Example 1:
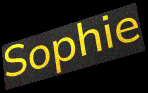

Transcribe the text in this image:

Sophie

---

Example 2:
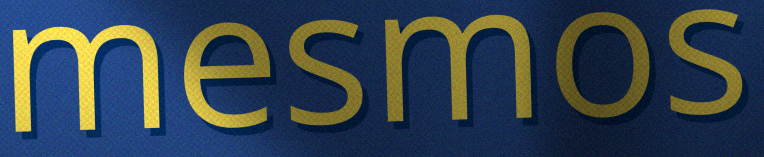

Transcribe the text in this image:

mesmos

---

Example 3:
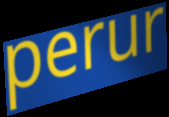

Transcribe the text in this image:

perur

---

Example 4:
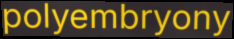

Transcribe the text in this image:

polyembryony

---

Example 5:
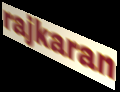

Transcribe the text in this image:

rajkaran